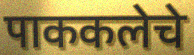
पाककलेचे